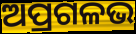
ଅପ୍ରଗଳଭ